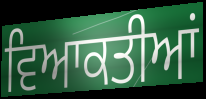
ਵਿਆਕਤੀਆਂ